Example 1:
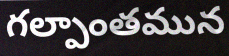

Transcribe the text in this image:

గల్పాంతమున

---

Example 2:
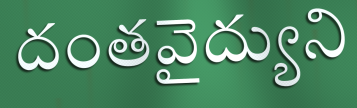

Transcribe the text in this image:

దంతవైద్యుని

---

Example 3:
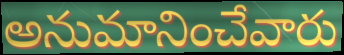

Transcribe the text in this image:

అనుమానించేవారు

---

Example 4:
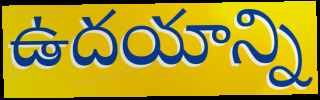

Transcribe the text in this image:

ఉదయాన్ని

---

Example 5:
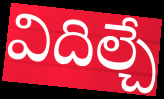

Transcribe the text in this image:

విదిల్చే